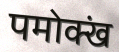
पमोक्खं